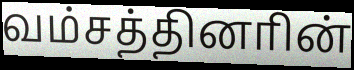
வம்சத்தினரின்